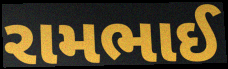
રામભાઈ